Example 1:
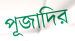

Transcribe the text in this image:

পূজাদির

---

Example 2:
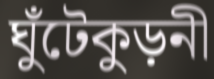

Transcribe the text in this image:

ঘুঁটেকুড়নী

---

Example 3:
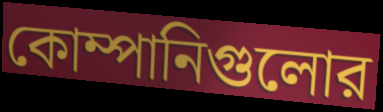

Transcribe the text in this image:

কোম্পানিগুলোর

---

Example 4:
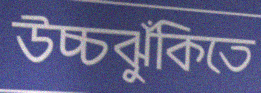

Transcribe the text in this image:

উচ্চঝুঁকিতে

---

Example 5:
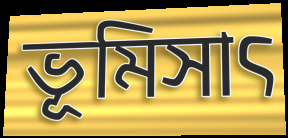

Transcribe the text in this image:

ভূমিসাৎ